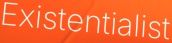
Existentialist